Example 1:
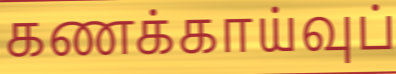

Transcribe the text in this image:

கணக்காய்வுப்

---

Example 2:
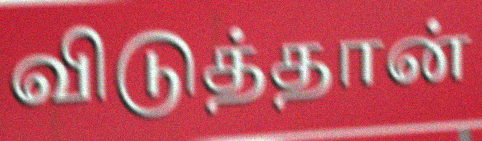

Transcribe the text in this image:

விடுத்தான்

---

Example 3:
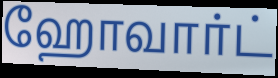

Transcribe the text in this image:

ஹோவார்ட்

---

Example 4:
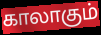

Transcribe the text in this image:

காலாகும்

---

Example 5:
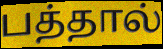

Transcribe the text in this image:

பத்தால்